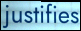
justifies